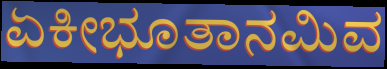
ಏಕೀಭೂತಾನಮಿವ